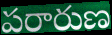
పరారుణ